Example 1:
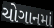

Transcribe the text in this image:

ચોગાનમાં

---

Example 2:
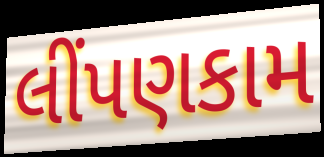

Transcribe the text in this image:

લીંપણકામ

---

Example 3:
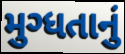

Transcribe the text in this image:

મુગ્ધતાનું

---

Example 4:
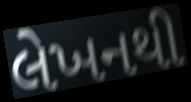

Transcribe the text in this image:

લેખનથી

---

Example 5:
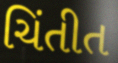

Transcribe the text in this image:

ચિંતીત